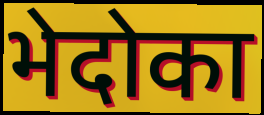
भेदोका